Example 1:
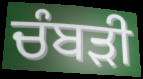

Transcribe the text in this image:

ਚੰਬੜੀ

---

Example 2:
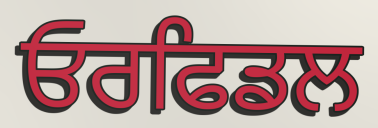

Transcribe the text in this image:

ਓਰਫਿਡਲ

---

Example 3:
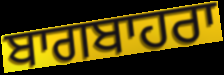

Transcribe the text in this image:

ਬਾਗਬਾਹਰਾ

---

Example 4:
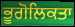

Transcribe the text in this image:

ਭੂਗੋਲਿਕਤਾ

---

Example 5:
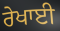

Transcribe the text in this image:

ਰੇਖਾਈ